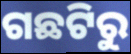
ଗଛଟିରୁ